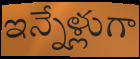
ఇన్నేళ్లుగా